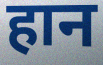
हान